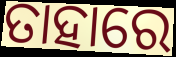
ତାହାରେ